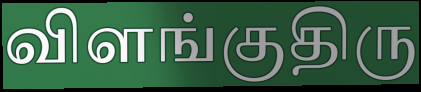
விளங்குதிரு